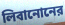
লিবানোনের